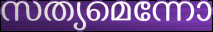
സത്യമെന്നോ